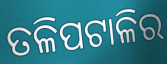
ତଳିପଟାଳିର